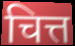
चित्त